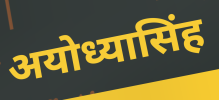
अयोध्यासिंह